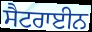
ਸੈਟਰਾਈਨ